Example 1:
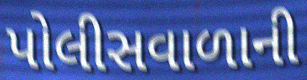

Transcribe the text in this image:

પોલીસવાળાની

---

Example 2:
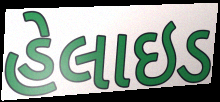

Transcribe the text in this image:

હેલાઇડ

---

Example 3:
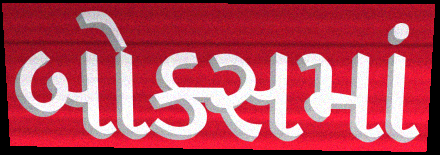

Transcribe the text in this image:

બોક્સમાં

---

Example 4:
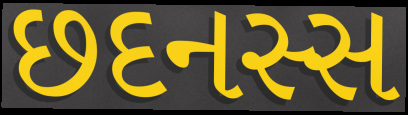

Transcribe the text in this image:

છદનસ્સ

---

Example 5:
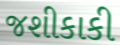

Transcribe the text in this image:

જશીકાકી